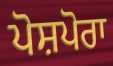
ਪੋਸ਼ਪੋਰਾ